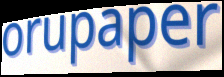
orupaper